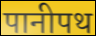
पानीपथ